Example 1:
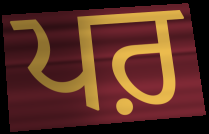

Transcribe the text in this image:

ਪਰ਼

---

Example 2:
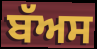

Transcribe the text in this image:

ਬੱਅਸ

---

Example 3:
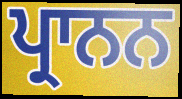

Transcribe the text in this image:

ਪ੍ਰਾਨਨ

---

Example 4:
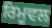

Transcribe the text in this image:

ਰਿਮੂਵਲ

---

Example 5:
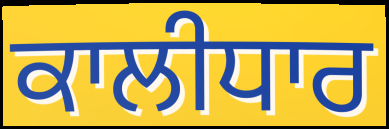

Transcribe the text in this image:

ਕਾਲੀਧਾਰ